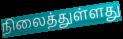
நிலைத்துள்ளது